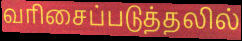
வரிசைப்படுத்தலில்